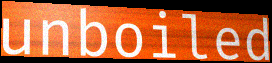
unboiled